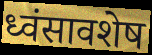
ध्वंसावशेष